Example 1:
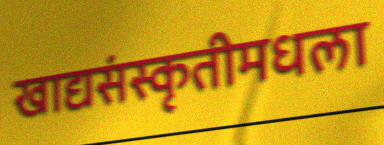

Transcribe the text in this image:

खाद्यसंस्कृतीमधला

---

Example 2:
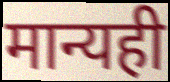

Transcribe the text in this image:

मान्यही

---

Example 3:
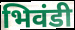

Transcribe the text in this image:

भिवंडी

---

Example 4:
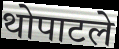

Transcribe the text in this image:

थोपाटले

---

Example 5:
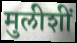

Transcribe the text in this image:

मुलीशीं